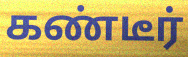
கண்டீர்